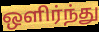
ஒளிர்ந்து